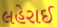
લહેરાઈ